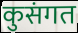
कुसंगत